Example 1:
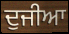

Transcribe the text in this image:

ਦੁਜੀਆ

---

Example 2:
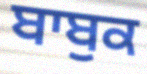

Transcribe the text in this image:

ਬਾਬੁਕ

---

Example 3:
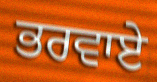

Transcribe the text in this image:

ਭਰਵਾਏ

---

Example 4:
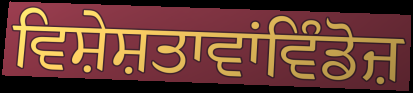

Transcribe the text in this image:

ਵਿਸ਼ੇਸ਼ਤਾਵਾਂਵਿੰਡੋਜ਼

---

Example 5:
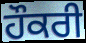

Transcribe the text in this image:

ਹੌਕਰੀ